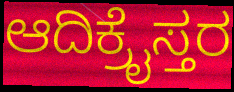
ಆದಿಕ್ರೈಸ್ತರ